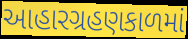
આહારગ્રહણકાળમાં